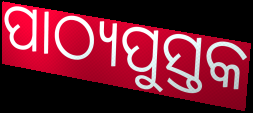
ପାଠ୍ୟପୁସ୍ତକ